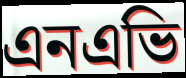
এনএভি